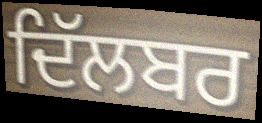
ਦਿੱਲਬਰ